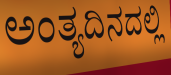
ಅಂತ್ಯದಿನದಲ್ಲಿ